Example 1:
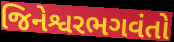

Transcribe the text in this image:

જિનેશ્વરભગવંતો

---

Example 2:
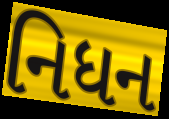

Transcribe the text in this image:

નિધન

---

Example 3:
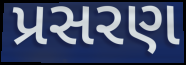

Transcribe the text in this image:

પ્રસરણ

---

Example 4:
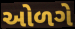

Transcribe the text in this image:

ઓળગે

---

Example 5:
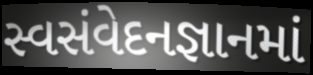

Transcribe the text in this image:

સ્વસંવેદનજ્ઞાનમાં